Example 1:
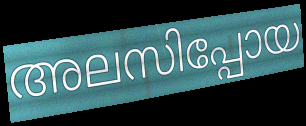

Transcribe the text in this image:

അലസിപ്പോയ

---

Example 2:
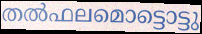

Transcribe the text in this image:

തൽഫലമൊട്ടൊട്ടു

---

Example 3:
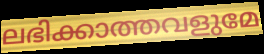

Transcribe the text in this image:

ലഭിക്കാത്തവളുമേ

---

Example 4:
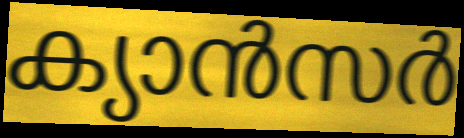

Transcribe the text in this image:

ക്യാൻസർ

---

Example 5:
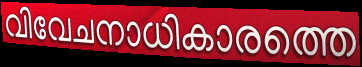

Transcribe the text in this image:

വിവേചനാധികാരത്തെ